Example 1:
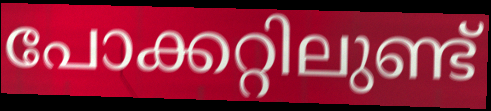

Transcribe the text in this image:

പോക്കറ്റിലുണ്ട്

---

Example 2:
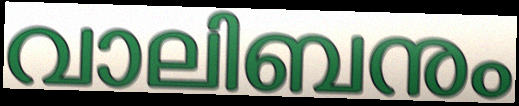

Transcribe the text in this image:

വാലിബനും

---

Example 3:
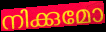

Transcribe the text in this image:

നിക്കുമോ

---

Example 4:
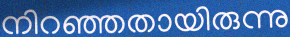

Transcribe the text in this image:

നിറഞ്ഞതായിരുന്നു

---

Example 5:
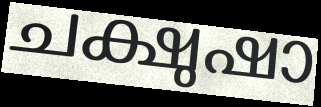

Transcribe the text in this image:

ചക്ഷുഷാ